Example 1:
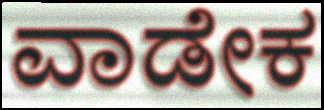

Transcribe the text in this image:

ವಾಡೇಕ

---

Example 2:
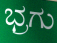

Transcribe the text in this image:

ಭ್ರಗು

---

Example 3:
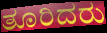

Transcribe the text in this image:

ತೂರಿದರು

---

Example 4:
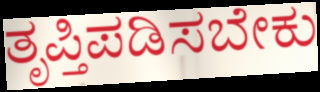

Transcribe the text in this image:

ತೃಪ್ತಿಪಡಿಸಬೇಕು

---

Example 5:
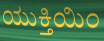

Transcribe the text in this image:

ಯುಕ್ತಿಯಿಂ